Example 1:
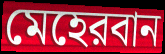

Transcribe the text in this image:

মেহেরবান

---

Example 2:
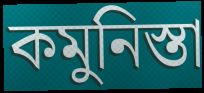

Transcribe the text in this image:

কমুনিস্তা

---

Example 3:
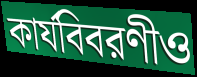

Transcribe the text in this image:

কার্যবিবরণীও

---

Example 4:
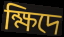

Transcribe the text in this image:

ক্ষিদে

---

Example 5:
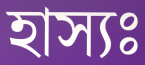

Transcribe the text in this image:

হাস্যঃ